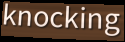
knocking